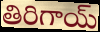
తిరిగాయ్